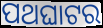
ପଥଘାଟର